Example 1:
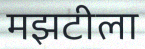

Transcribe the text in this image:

मझटीला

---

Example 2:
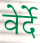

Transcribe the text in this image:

वेर्दे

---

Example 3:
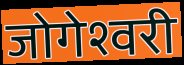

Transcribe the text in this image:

जोगेश्वरी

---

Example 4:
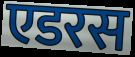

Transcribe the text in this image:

एडरस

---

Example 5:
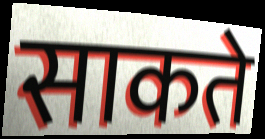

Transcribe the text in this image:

साकते